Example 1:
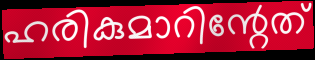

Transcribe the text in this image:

ഹരികുമാറിന്റേത്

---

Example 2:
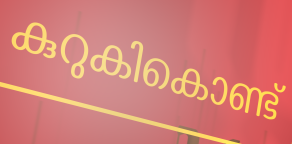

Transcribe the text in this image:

കുറുകികൊണ്ട്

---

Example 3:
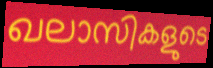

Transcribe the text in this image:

ഖലാസികളുടെ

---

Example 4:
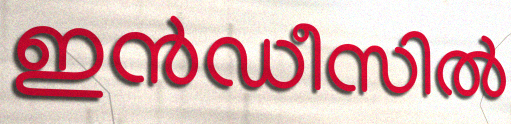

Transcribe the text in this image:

ഇൻഡീസിൽ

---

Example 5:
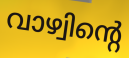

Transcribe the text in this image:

വാഴ്വിന്റെ